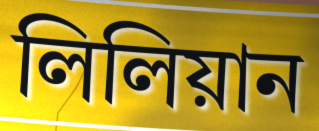
লিলিয়ান